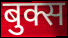
बुक्स